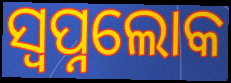
ସ୍ଵପ୍ନଲୋକ